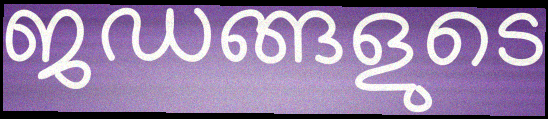
ജഡങ്ങളുടെ